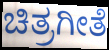
ಚಿತ್ರಗೀತೆ